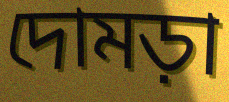
দোমড়া